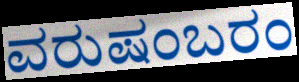
ವರುಷಂಬರಂ